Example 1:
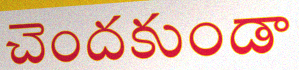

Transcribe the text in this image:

చెందకుండా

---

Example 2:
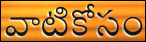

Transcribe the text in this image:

వాటికోసం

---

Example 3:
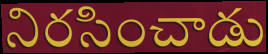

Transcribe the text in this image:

నిరసించాడు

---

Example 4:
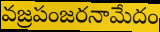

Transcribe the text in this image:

వజ్రపంజరనామేదం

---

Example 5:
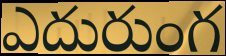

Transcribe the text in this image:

ఎదురుంగ